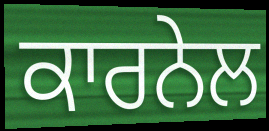
ਕਾਰਨੇਲ